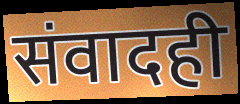
संवादही